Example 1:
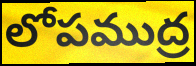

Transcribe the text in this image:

లోపముద్ర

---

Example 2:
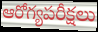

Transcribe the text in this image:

ఆరోగ్యపరీక్షలు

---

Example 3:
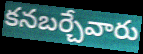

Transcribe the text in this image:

కనబర్చేవారు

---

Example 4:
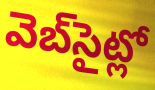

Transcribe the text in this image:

వెబ్‌సైట్లో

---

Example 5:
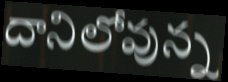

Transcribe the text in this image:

దానిలోవున్న